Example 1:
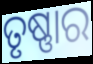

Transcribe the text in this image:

ତୃଷ୍ଣାର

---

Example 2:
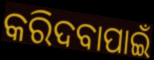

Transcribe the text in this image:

କରିଦବାପାଇଁ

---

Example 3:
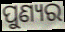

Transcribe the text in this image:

ପୁଣ୍ୟର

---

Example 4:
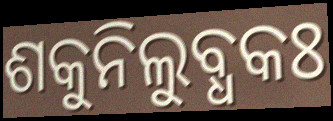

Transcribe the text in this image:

ଶକୁନିଲୁବ୍ଧକଃ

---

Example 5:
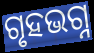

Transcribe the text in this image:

ଗୃହଭଗ୍ନ